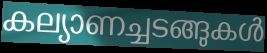
കല്യാണച്ചടങ്ങുകൾ